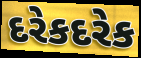
દરેકદરેક